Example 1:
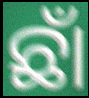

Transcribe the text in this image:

ଛାଁ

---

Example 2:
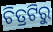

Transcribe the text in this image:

ଚିତ୍ରଟିରୁ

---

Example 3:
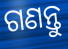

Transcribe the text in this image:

ଗଣନ୍ତୁ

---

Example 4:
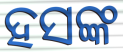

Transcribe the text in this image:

ହସଙ୍କ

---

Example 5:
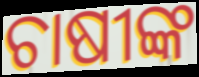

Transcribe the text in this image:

ଚାଷୀଙ୍କ